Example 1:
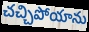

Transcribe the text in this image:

చచ్చిపోయాను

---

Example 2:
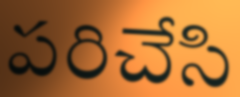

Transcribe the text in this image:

పరిచేసి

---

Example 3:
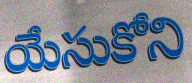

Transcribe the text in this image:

యేసుకోని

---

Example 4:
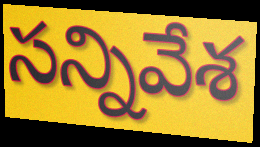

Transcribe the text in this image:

సన్నివేశ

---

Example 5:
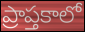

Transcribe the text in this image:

ప్రాప్తకాలో